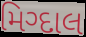
મિગ્દાલ